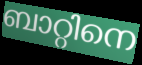
ബാറ്റിനെ